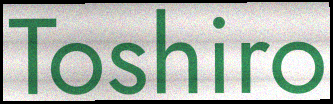
Toshiro